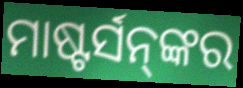
ମାଷ୍ଟର୍ସନ୍‌ଙ୍କର